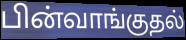
பின்வாங்குதல்